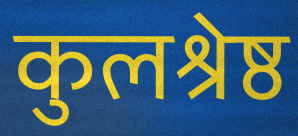
कुलश्रेष्ठ